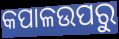
କପାଳଉପରୁ